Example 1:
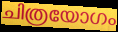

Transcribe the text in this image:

ചിത്രയോഗം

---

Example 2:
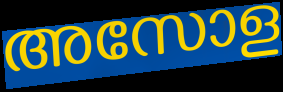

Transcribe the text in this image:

അസോള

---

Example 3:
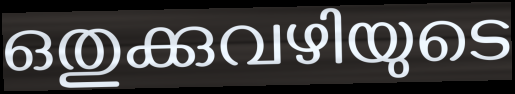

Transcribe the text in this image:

ഒതുക്കുവഴിയുടെ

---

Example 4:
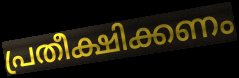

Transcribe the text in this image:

പ്രതീക്ഷിക്കണം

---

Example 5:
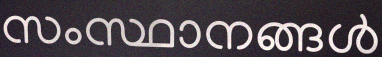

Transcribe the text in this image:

സംസ്ഥാനങ്ങൾ